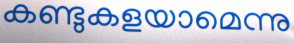
കണ്ടുകളയാമെന്നു